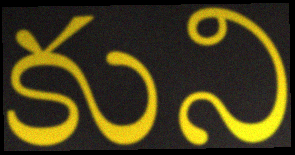
కుని